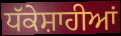
ਧੱਕੇਸ਼ਾਹੀਆਂ